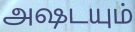
அஷடயும்